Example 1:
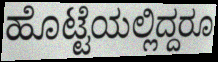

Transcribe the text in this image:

ಹೊಟ್ಟೆಯಲ್ಲಿದ್ದರೂ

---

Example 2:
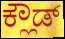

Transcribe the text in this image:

ಕ್ಲೌಡ್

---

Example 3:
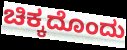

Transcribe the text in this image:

ಚಿಕ್ಕದೊಂದು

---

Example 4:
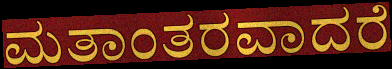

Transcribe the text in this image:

ಮತಾಂತರವಾದರೆ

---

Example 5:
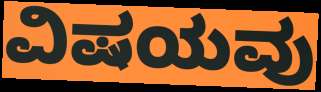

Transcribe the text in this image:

ವಿಷಯವು